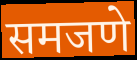
समजणे